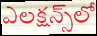
ఎలక్షన్స్‌లో